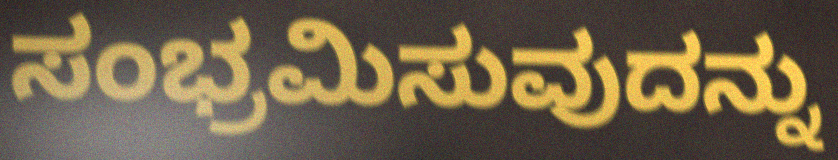
ಸಂಭ್ರಮಿಸುವುದನ್ನು